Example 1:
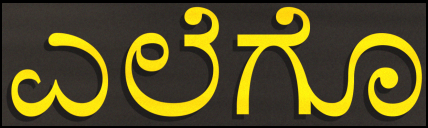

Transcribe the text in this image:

ಎಲೆಗೊ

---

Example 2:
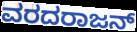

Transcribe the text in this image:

ವರದರಾಜನ್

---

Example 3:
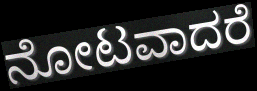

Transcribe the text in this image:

ನೋಟವಾದರೆ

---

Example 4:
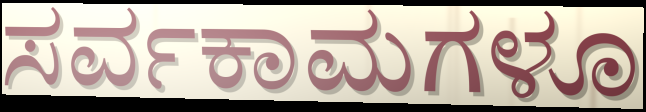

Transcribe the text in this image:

ಸರ್ವಕಾಮಗಳೂ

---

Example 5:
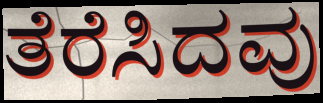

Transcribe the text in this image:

ತೆರೆಸಿದವು